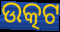
ଉତ୍କଟ